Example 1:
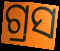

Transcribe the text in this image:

ଗ୍ରସ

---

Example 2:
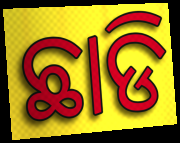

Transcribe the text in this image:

ଛାଡି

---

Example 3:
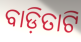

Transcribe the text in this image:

ବାଡ଼ିତାଟି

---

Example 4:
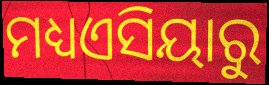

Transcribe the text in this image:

ମଧ୍ୟଏସିୟାରୁ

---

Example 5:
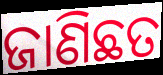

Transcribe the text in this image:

ଜାଣିଛତ